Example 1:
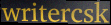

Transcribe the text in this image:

writercsk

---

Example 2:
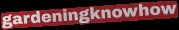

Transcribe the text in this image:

gardeningknowhow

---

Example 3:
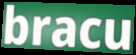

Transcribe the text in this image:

bracu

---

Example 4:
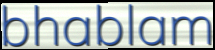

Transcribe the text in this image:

bhablam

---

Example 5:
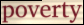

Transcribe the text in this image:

poverty